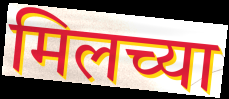
मिलच्या